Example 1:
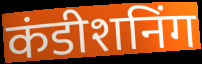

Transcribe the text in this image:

कंडीशनिंग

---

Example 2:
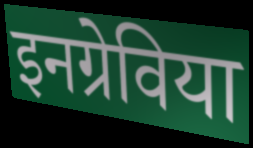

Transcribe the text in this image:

इनग्रेविया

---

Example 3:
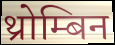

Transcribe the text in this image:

थ्रोम्बिन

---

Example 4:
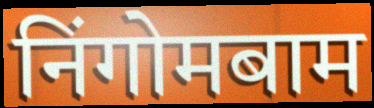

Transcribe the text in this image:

निंगोमबाम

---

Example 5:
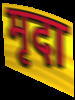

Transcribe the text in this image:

मृदा